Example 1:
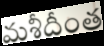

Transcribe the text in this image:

మశీదీంత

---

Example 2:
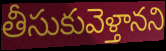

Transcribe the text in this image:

తీసుకువెళ్తానని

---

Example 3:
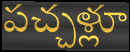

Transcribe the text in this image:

పచ్చళ్లూ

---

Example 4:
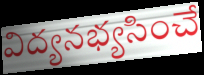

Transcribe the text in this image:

విద్యనభ్యసించే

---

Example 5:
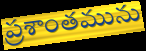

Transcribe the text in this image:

ప్రశాంతమును